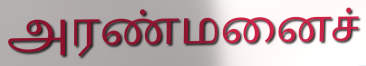
அரண்மனைச்